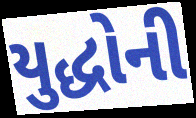
યુદ્ધોની